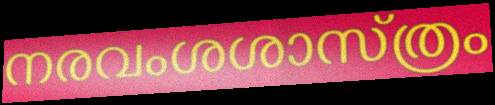
നരവംശശാസ്‌ത്രം